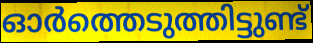
ഓർത്തെടുത്തിട്ടുണ്ട്